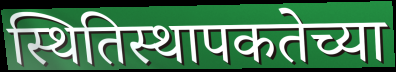
स्थितिस्थापकतेच्या